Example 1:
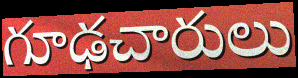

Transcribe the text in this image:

గూఢచారులు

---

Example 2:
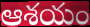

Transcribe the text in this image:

ఆశయం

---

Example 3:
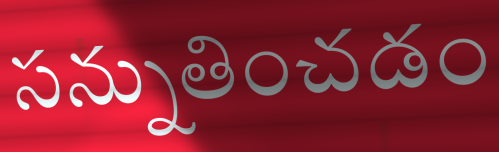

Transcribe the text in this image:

సన్నుతించడం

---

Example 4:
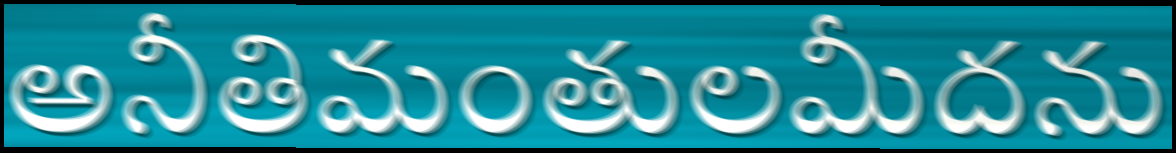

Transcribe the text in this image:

అనీతిమంతులమీదను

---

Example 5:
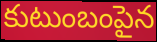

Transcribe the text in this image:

కుటుంబంపైన